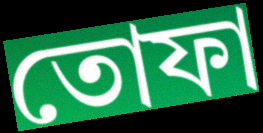
তোফা